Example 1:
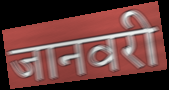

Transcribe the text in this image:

जानवरी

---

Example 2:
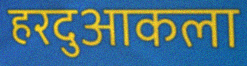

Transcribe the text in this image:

हरदुआकला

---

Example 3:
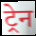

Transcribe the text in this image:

ट्र्रेन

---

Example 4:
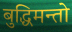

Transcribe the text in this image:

बुद्धिमन्तो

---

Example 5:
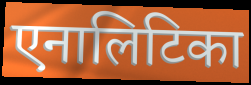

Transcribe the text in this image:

एनालिटिका